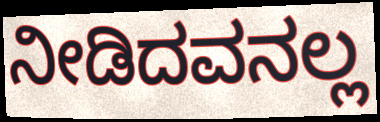
ನೀಡಿದವನಲ್ಲ